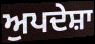
ਅੁਪਦੇਸ਼ਾ